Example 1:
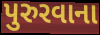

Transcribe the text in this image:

પુરુરવાના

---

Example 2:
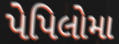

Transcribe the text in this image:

પેપિલોમા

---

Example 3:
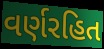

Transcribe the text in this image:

વર્ણરહિત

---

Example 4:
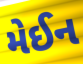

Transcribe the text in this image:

મેઈન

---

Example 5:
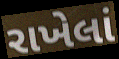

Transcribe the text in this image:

રાખેલાં